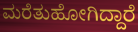
ಮರೆತುಹೋಗಿದ್ದಾರೆ